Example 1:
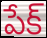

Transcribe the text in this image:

పేక్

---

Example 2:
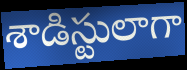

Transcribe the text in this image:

శాడిస్టులాగా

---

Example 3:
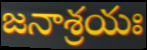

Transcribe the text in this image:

జనాశ్రయః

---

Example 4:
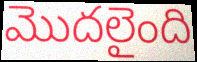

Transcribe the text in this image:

మొదలైంది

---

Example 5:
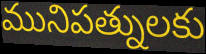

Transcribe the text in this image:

మునిపత్నులకు